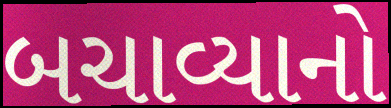
બચાવ્યાનો